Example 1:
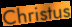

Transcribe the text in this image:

Christus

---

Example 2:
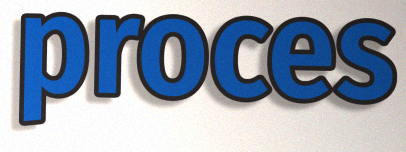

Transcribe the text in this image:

proces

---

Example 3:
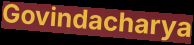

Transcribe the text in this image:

Govindacharya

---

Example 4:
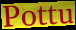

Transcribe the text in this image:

Pottu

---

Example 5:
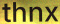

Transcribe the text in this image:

thnx